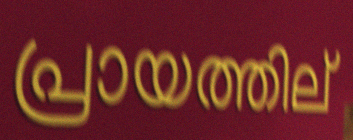
പ്രായത്തില്